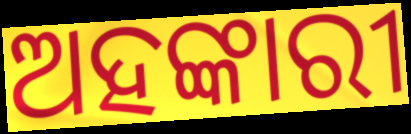
ଅହଙ୍କାରୀ